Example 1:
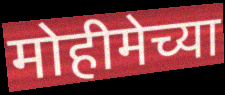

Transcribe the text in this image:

मोहीमेच्या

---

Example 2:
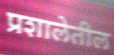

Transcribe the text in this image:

प्रशालेतील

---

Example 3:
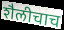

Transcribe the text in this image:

शैलीचाच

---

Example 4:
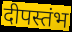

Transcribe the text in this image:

दीपस्तंभ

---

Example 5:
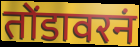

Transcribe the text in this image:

तोंडावरनं